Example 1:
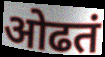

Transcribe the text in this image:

ओढतं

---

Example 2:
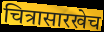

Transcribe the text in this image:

चित्रासारखेच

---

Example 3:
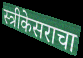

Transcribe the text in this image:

स्त्रीकेसराचा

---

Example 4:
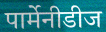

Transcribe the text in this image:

पार्मेनीडीज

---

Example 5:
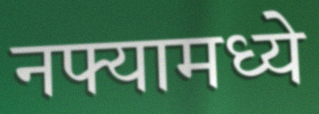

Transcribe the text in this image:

नफ्यामध्ये